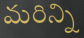
మరిన్ని